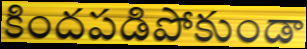
కిందపడిపోకుండా